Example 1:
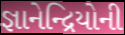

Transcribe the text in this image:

જ્ઞાનેન્દ્રિયોની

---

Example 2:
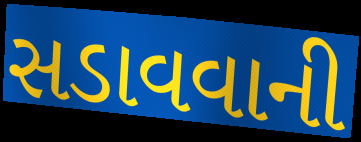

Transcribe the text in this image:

સડાવવાની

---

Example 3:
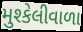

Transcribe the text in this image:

મુશ્કેલીવાળા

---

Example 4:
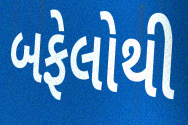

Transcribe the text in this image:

બફેલોથી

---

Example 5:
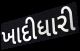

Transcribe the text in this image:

ખાદીધારી